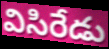
విసిరేడు